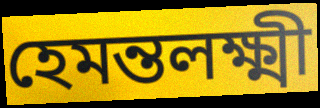
হেমন্তলক্ষ্মী